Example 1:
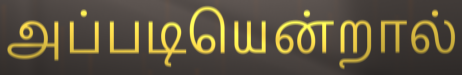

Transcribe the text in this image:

அப்படியென்றால்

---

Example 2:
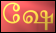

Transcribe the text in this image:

ஷே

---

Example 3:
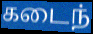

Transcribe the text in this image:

கடைந்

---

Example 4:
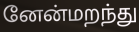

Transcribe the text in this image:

னேன்மறந்து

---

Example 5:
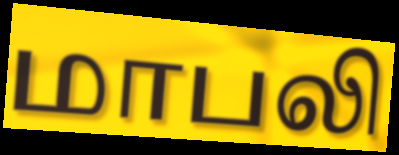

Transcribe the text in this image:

மாபலி